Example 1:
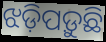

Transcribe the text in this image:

ଝଡ଼ିପଡ଼ୁଛି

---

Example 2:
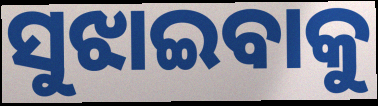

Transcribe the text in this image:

ସୁଝାଇବାକୁ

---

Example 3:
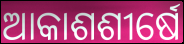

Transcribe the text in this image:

ଆକାଶଶୀର୍ଷେ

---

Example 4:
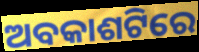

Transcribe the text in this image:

ଅବକାଶଟିରେ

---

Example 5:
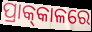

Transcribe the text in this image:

ପ୍ରାକ୍‌କାଳରେ